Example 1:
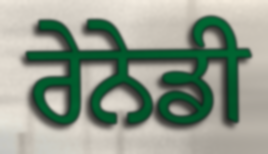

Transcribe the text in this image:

ਰੇਨੇਡੀ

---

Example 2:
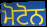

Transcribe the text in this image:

ਮੋਟੋਨ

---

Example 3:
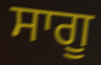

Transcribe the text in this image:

ਸਾਗੂ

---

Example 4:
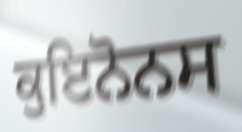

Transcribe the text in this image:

ਕੁਇਨੋਨਸ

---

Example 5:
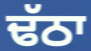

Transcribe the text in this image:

ਢੱਠਾ